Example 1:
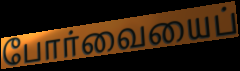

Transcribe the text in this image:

போர்வையைப்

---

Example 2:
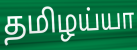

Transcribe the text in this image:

தமிழய்யா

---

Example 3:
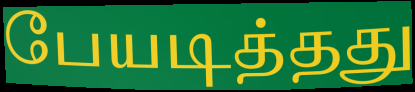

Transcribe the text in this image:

பேயடித்தது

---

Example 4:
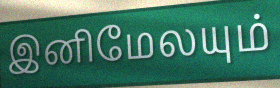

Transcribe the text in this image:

இனிமேலயும்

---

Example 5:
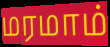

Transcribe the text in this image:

மரமாம்